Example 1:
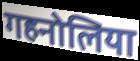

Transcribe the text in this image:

गहनोलिया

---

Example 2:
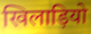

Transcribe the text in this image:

खिलाड़ियो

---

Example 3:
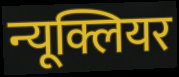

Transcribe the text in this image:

न्‍यूक्लियर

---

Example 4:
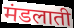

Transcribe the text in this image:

मंडलाती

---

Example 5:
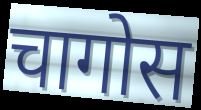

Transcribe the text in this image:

चागोस